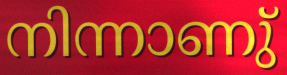
നിന്നാണു്